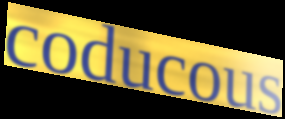
coducous